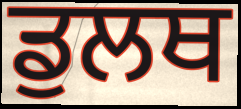
ਡੁਲਥ